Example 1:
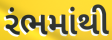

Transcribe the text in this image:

રંભમાંથી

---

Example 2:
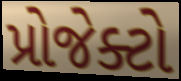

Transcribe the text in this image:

પ્રોજેક્ટો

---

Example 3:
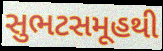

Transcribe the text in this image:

સુભટસમૂહથી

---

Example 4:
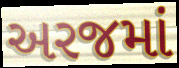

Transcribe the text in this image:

અરજમાં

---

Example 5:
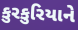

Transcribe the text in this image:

કુરકુરિયાને